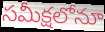
సమీక్షలోనూ